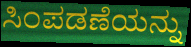
ಸಿಂಪಡಣೆಯನ್ನು